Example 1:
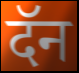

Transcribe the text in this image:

दॅन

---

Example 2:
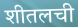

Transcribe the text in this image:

शीतलची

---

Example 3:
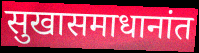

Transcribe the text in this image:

सुखासमाधानांत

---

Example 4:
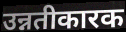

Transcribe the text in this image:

उन्नतीकारक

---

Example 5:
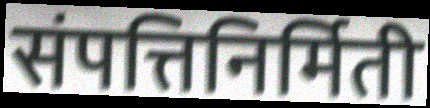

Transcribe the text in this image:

संपत्तिनिर्मिती